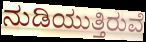
ನುಡಿಯುತ್ತಿರುವೆ